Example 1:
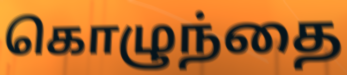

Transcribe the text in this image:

கொழுந்தை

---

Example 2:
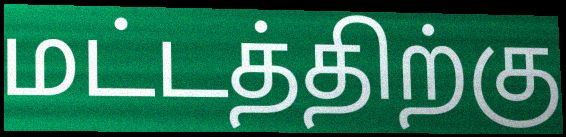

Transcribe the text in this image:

மட்டத்திற்கு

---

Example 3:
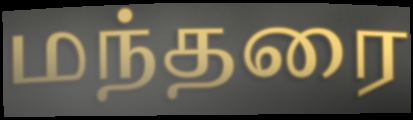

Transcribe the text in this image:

மந்தரை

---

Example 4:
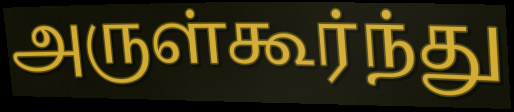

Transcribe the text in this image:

அருள்கூர்ந்து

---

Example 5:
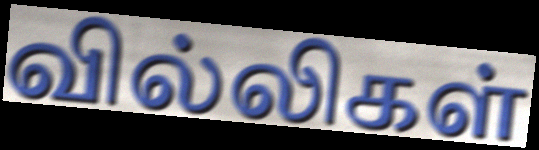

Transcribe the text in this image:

வில்லிகள்